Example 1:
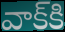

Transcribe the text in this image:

వాక్‌కి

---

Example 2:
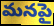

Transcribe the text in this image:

మనపై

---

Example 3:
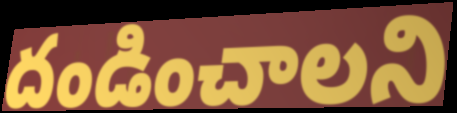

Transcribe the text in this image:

దండించాలని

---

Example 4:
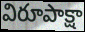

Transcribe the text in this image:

విరూపాక్షా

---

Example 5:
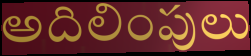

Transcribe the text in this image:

అదిలింపులు